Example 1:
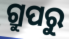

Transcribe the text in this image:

ଗ୍ରୁପରୁ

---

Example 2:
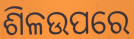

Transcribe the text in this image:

ଶିଳଉପରେ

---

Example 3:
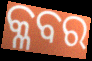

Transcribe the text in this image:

କ୍ଳବର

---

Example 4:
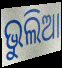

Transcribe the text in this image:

ଭୁଲିଆ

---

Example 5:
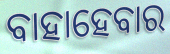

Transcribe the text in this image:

ବାହାହେବାର